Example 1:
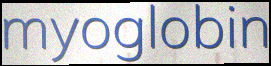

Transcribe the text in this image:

myoglobin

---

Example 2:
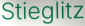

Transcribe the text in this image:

Stieglitz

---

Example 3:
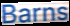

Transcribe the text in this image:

Barns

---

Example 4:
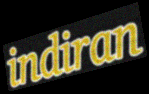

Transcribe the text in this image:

indiran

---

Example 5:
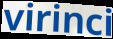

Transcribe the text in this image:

virinci